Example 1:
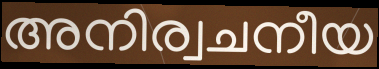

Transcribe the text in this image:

അനിര്വചനീയ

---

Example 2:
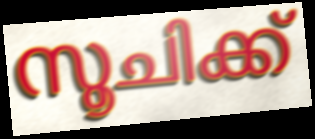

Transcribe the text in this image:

സൂചിക്ക്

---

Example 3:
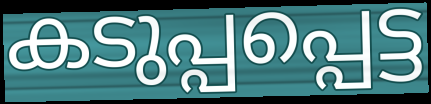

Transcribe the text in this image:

കടുപ്പപ്പെട്ട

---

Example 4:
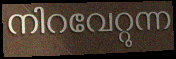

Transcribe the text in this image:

നിറവേറ്റുന്ന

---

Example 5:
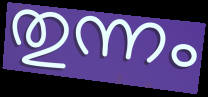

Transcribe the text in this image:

തുന്നം